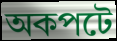
অকপটে